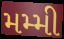
મમ્મી